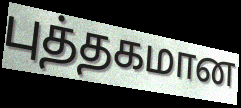
புத்தகமான